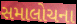
સમાલોચના